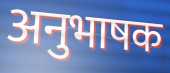
अनुभाषक